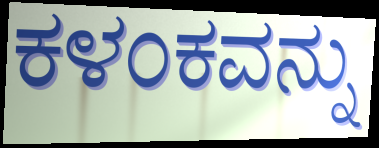
ಕಳಂಕವನ್ನು